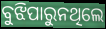
ବୁଝିପାରୁନଥିଲେ